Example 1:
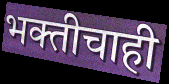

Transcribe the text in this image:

भक्तीचाही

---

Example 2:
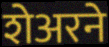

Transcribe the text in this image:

शेअरने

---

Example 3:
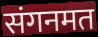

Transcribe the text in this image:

संगनमत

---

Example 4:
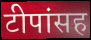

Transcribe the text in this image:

टीपांसह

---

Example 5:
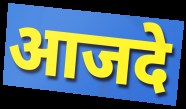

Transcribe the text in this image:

आजदे